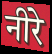
नीरे